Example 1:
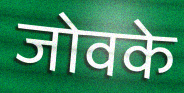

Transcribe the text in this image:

जोवके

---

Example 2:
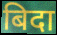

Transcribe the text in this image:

बिदा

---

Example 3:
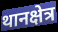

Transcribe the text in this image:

थानक्षेत्र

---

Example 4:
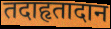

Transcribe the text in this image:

तदाहृतादान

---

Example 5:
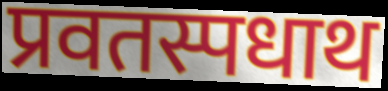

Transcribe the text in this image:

प्रवतस्पधाथ